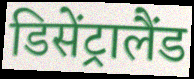
डिसेंट्रालैंड